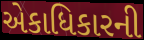
એકાધિકારની